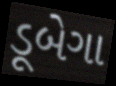
ડૂબેગા